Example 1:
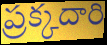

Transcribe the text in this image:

ప్రక్కదారి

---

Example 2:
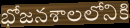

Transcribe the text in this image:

భోజనశాలలోనికి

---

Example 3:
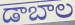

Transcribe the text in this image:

డాబాల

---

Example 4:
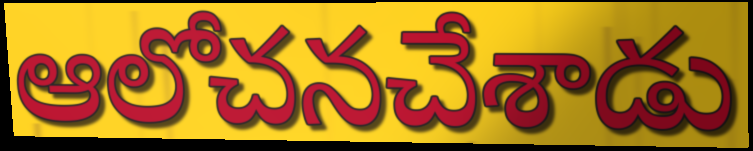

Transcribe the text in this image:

ఆలోచనచేశాడు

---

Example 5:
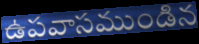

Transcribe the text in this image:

ఉపవాసముండిన